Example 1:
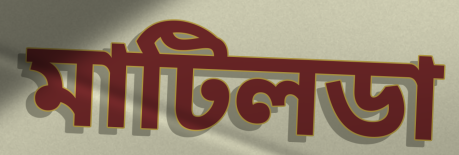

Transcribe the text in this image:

মাটিলডা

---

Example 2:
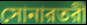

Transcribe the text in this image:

সোনারতরী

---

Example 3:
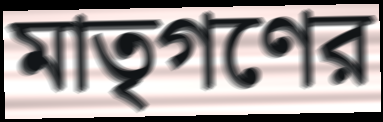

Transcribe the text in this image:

মাতৃগণের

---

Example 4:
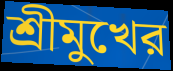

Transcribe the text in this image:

শ্রীমুখের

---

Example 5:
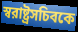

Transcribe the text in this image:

স্বরাষ্ট্রসচিবকে